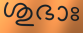
ശുഭാഃ